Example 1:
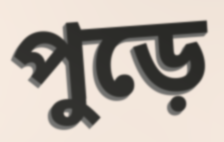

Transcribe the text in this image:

পুড়ে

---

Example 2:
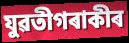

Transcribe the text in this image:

যুৱতীগৰাকীৰ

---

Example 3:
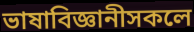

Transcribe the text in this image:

ভাষাবিজ্ঞানীসকলে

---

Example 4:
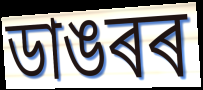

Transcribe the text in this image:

ডাঙৰৰ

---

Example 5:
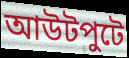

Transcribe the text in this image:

আউটপুটে